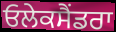
ਓਲੇਕਸੈਂਡਰਾ